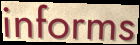
informs